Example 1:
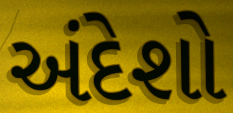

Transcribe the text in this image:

અંદેશો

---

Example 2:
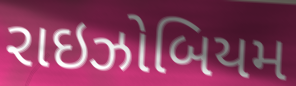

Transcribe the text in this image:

રાઇઝોબિયમ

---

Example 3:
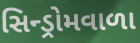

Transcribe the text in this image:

સિન્ડ્રોમવાળા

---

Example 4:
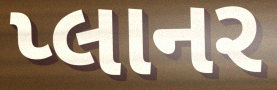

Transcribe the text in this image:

પ્લાનર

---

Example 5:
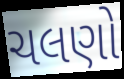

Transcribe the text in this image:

ચલણો